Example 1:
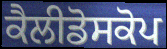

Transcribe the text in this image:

ਕੈਲੀਡੋਸਕੋਪ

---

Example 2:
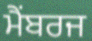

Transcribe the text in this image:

ਮੈਂਬਰਜ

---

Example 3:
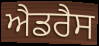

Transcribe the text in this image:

ਐਡਰੈਸ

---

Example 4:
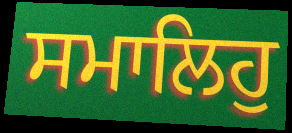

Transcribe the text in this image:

ਸਮਾਲਿਹੁ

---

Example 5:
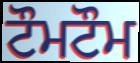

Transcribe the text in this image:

ਟੌਮਟੌਮ